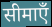
सीमाएँ